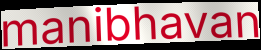
manibhavan